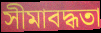
সীমাবদ্ধতা